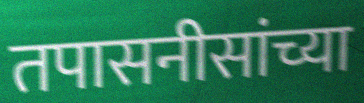
तपासनीसांच्या